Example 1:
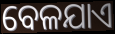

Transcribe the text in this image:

ବେଳଯାଏ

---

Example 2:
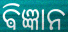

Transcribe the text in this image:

ଵିଜ୍ଞାନ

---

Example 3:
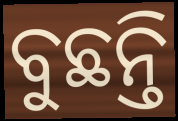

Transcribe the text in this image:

ବୁଛନ୍ତି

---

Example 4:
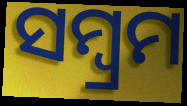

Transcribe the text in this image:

ସମ୍ବ୍ରମ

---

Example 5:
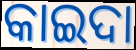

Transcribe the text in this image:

କାଇଦା